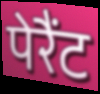
पेरैंट